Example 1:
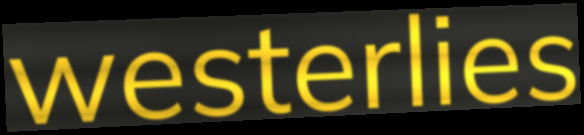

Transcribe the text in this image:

westerlies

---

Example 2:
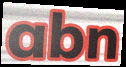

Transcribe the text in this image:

abn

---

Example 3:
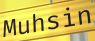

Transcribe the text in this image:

Muhsin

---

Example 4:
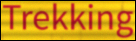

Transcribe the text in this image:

Trekking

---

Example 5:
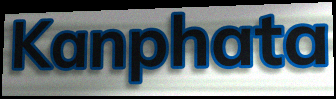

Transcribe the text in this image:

Kanphata